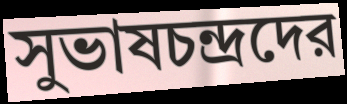
সুভাষচন্দ্রদের